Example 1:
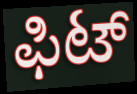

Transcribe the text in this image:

ಫಿಟ್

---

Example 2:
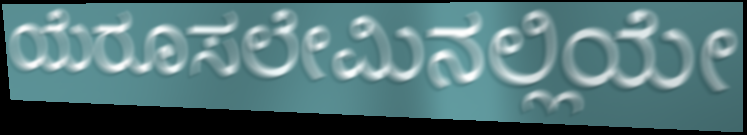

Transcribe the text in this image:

ಯೆರೂಸಲೇಮಿನಲ್ಲಿಯೇ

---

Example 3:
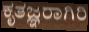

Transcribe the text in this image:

ಕೃತಜ್ಞರಾಗಿರಿ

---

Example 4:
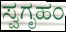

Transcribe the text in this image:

ಸ್ವಗೃಹಂ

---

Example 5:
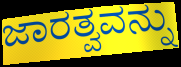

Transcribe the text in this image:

ಜಾರತ್ವವನ್ನು